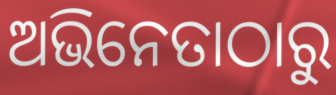
ଅଭିନେତାଠାରୁ